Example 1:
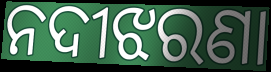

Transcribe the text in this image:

ନଦୀଝରଣା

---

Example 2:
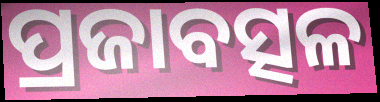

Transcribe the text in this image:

ପ୍ରଜାବତ୍ସଳ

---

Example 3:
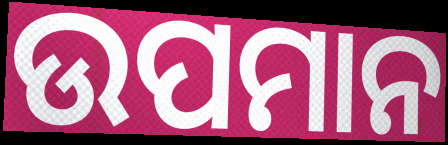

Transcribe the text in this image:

ଉପମାନ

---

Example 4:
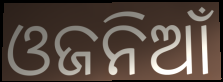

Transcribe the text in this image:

ଓଜନିଆଁ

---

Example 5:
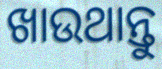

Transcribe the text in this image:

ଖାଉଥାନ୍ତୁ